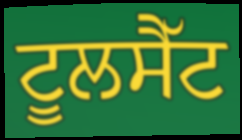
ਟੂਲਸੈੱਟ